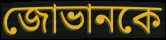
জোভানকে